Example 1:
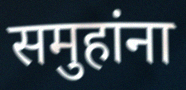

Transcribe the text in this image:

समुहांना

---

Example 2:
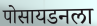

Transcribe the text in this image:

पोसायडनला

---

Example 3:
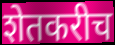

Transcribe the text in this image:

शेतकरीच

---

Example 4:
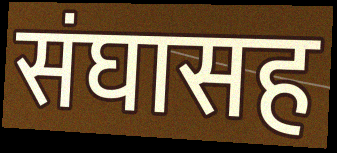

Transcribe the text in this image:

संघासह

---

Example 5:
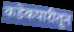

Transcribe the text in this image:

कडेकपारीतून